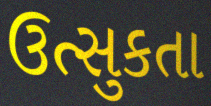
ઉત્સુકતા